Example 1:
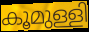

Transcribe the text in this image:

കൂമുള്ളി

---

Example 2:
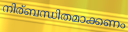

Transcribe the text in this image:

നിര്ബന്ധിതമാക്കണം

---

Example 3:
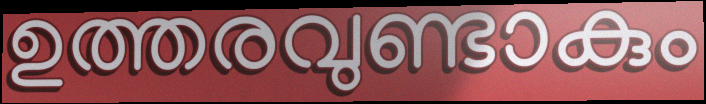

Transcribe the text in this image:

ഉത്തരവുണ്ടാകും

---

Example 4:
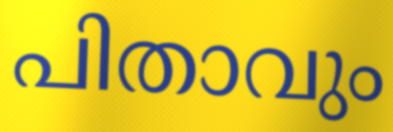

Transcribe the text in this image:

പിതാവും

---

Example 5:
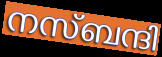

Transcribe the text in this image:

നസ്ബന്ദി